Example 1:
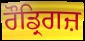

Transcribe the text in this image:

ਰੌਡ੍ਰਿਗਜ਼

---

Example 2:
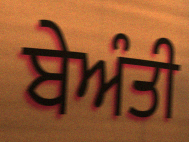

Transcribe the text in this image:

ਬੇਅੰਤੀ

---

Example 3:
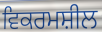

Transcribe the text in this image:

ਵਿਕਰਮਸ਼ੀਲ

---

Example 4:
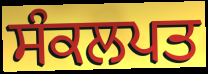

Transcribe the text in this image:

ਸੰਕਲਪਤ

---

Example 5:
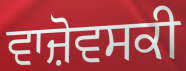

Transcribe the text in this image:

ਵਾਜ਼ੋਵਸਕੀ